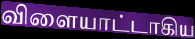
விளையாட்டாகிய